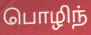
பொழிந்